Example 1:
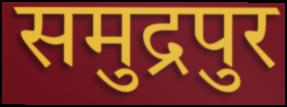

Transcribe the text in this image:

समुद्रपुर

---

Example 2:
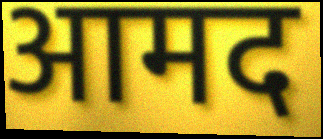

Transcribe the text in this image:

आमद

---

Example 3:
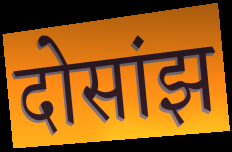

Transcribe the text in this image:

दोसांझ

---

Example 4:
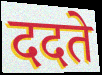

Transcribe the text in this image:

ददते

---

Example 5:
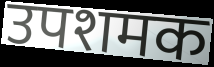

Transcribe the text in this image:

उपशमक